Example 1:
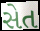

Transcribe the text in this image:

સેત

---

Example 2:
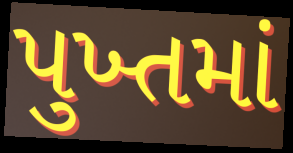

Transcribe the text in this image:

પુખ્તમાં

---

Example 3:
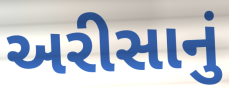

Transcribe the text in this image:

અરીસાનું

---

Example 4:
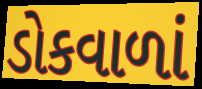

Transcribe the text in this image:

ડોકવાળાં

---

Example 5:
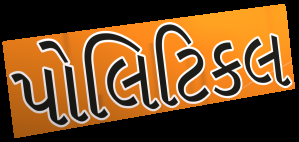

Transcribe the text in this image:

પોલિટિકલ